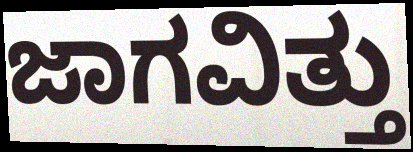
ಜಾಗವಿತ್ತು